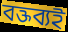
বক্তব্যই